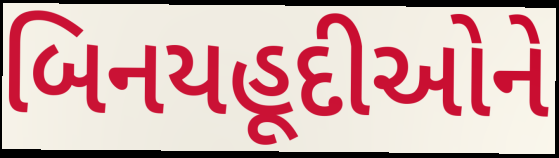
બિનયહૂદીઓને